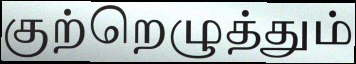
குற்றெழுத்தும்